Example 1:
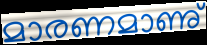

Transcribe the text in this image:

മാരണമാണു്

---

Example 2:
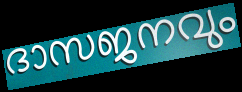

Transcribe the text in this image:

ദാസജനവും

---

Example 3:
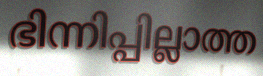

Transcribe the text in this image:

ഭിന്നിപ്പില്ലാത്ത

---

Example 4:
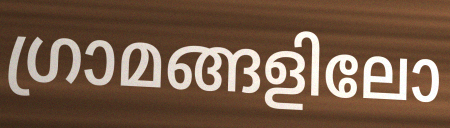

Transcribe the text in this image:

ഗ്രാമങ്ങളിലോ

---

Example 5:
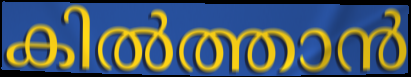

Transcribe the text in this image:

കിൽത്താൻ